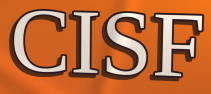
CISF